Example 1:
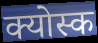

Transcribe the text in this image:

क्योस्क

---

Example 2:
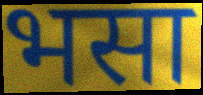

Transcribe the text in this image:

भसा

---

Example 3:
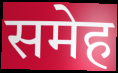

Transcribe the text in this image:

समेह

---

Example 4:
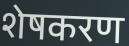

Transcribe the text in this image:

शेषकरण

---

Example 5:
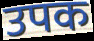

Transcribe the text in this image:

उपक